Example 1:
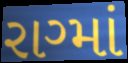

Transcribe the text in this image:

રાગ્માં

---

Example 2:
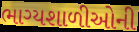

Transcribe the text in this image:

ભાગ્યશાળીઓની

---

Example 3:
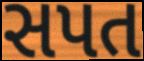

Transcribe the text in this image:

સપત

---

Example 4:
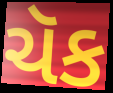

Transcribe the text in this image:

ચૅક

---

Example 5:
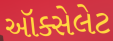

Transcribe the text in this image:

ઑક્સેલેટ